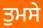
ਤੁਮਸੇ